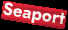
Seaport